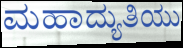
ಮಹಾದ್ಯುತಿಯು